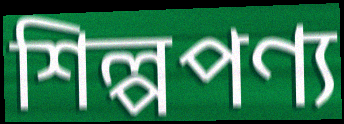
শিল্পপণ্য